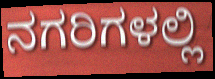
ನಗರಿಗಳಲ್ಲಿ